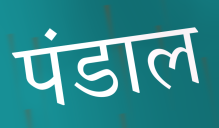
पंडाल